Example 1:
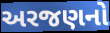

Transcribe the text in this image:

અરજણનો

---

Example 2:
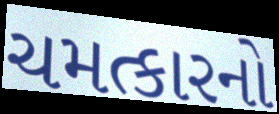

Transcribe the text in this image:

ચમત્કારનો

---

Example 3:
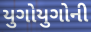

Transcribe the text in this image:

યુગોયુગોની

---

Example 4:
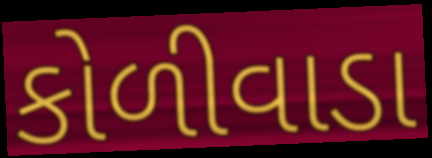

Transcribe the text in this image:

કોળીવાડા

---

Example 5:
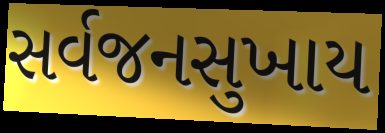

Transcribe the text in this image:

સર્વજનસુખાય